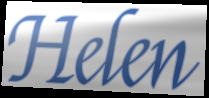
Helen